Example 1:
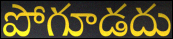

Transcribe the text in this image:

పోగూడదు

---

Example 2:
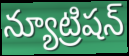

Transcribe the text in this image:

న్యూట్రిషన్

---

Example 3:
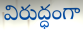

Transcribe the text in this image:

విరుద్ధంగా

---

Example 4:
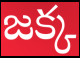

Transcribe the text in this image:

జక్క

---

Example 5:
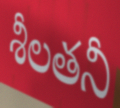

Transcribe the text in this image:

శీలతనీ